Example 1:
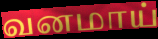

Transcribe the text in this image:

வனமாய்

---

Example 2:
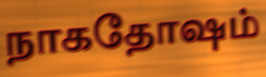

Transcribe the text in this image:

நாகதோஷம்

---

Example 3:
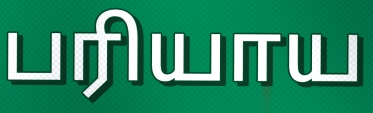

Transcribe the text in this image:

பரியாய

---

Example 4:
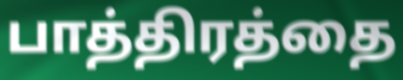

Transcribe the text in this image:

பாத்திரத்தை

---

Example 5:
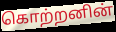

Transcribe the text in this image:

கொற்றனின்